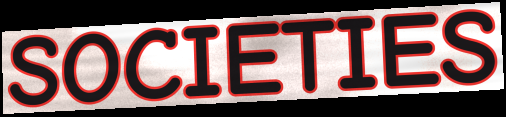
SOCIETIES